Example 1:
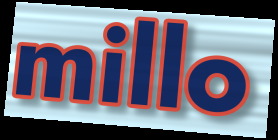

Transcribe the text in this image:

millo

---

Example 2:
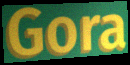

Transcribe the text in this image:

Gora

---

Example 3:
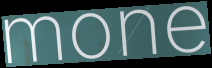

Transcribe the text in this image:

mone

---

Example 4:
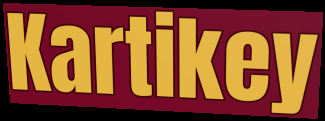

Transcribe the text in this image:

Kartikey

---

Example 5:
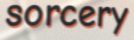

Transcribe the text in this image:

sorcery